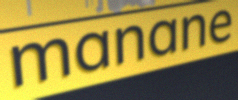
manane